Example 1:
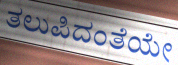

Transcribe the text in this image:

ತಲುಪಿದಂತೆಯೇ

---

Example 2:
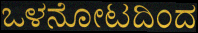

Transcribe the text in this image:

ಒಳನೋಟದಿಂದ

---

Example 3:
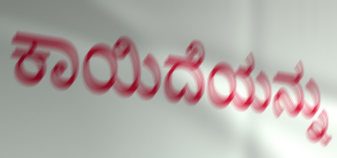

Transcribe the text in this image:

ಕಾಯಿದೆಯನ್ನು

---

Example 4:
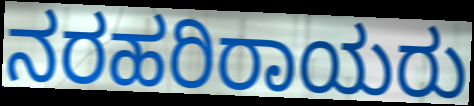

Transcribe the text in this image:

ನರಹರಿರಾಯರು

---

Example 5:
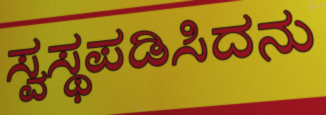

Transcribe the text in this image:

ಸ್ವಸ್ಥಪಡಿಸಿದನು